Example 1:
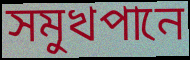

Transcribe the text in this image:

সমুখপানে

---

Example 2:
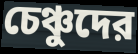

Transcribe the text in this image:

চেঞ্চুদের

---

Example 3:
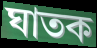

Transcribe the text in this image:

ঘাতক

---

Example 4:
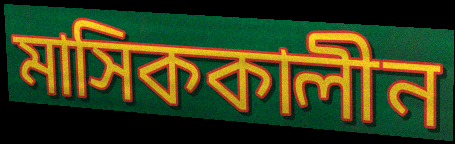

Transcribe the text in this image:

মাসিককালীন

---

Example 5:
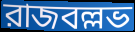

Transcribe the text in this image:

রাজবল্লভ